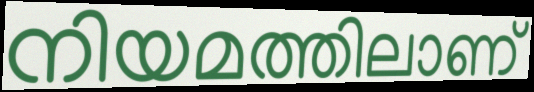
നിയമത്തിലാണ്